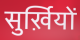
सुर्ख़ियों